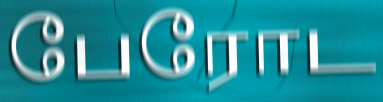
பேரோட